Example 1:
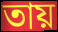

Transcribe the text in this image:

তায়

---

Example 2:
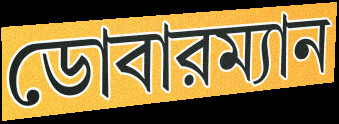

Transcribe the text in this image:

ডোবারম্যান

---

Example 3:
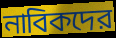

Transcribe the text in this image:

নাবিকদের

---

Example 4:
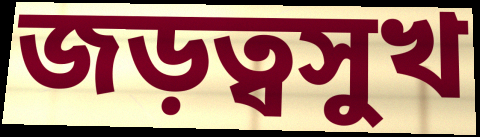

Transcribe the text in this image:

জড়ত্বসুখ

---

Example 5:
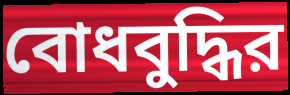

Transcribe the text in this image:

বোধবুদ্ধির